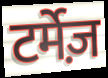
टर्मेज़